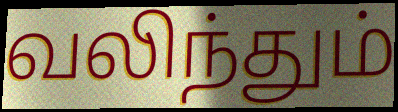
வலிந்தும்